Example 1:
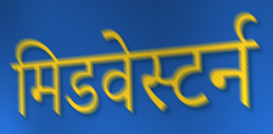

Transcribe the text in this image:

मिडवेस्टर्न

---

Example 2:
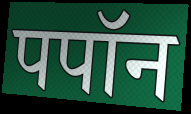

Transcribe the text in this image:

पपॉन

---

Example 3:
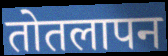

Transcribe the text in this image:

तोतलापन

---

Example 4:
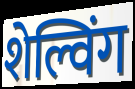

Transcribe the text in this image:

शेल्विंग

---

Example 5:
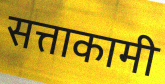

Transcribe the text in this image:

सत्ताकामी